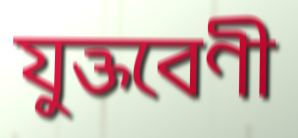
যুক্তবেণী